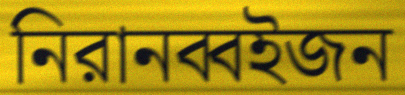
নিরানব্বইজন